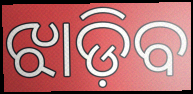
ଝାଡ଼ିବ